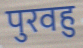
पुरवहु